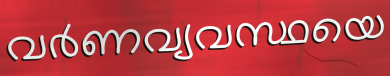
വർണവ്യവസ്ഥയെ